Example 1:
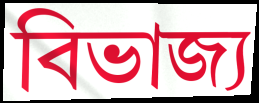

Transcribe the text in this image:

বিভাজ্য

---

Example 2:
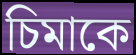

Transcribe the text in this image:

চিমাকে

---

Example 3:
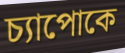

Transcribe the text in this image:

চ্যাপোকে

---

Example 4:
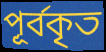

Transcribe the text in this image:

পূর্বকৃত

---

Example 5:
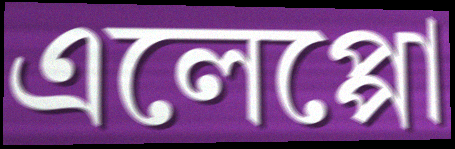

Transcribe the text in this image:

এলেপ্পো